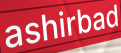
ashirbad